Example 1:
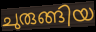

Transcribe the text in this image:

ചുരുങ്ങിയ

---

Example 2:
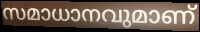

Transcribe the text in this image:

സമാധാനവുമാണ്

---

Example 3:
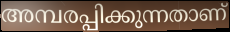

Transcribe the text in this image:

അമ്പരപ്പിക്കുന്നതാണ്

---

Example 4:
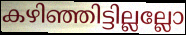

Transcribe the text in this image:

കഴിഞ്ഞിട്ടില്ലല്ലോ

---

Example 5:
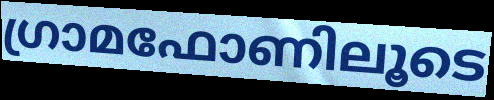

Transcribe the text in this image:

ഗ്രാമഫോണിലൂടെ